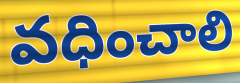
వధించాలి